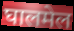
घालमेल